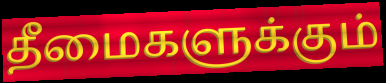
தீமைகளுக்கும்